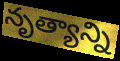
నృత్యాన్ని